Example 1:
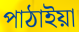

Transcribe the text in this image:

পাঠাইয়া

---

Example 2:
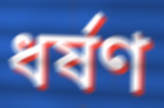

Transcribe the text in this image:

ধর্ষণ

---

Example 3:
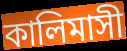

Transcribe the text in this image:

কালিমাসী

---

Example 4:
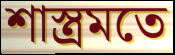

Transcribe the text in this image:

শাস্ত্রমতে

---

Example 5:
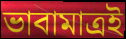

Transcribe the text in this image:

ভাবামাত্রই